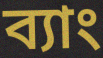
ব্যাং